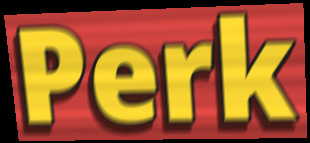
Perk